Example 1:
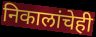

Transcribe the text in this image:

निकालांचेही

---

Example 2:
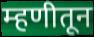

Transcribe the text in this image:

म्हणीतून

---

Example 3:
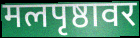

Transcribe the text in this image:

मलपृष्ठावर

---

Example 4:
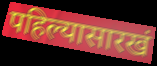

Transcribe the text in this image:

पहिल्यासारखं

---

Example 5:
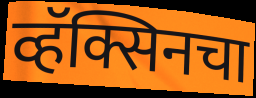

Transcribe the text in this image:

व्हॅक्सिनचा